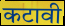
कटावी